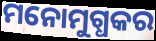
ମନୋମୁଗ୍ଧକର